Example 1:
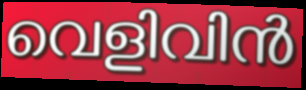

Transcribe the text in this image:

വെളിവിൻ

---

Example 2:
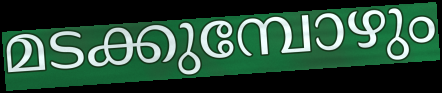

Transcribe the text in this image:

മടക്കുമ്പോഴും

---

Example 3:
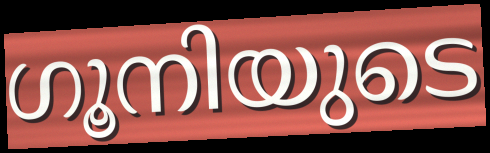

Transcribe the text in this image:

ഗൂനിയുടെ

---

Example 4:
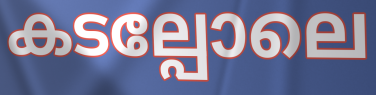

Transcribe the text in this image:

കടല്പോലെ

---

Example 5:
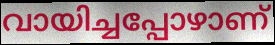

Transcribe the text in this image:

വായിച്ചപ്പോഴാണ്